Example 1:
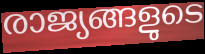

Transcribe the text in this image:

രാജ്യങ്ങളുടെ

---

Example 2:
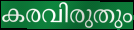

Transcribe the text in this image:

കരവിരുതും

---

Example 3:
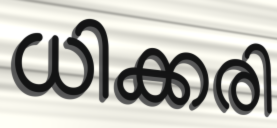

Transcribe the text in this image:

ധിക്കരി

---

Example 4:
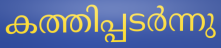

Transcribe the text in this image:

കത്തിപ്പടർന്നു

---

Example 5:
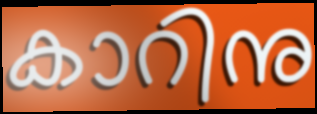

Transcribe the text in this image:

കാറിനു